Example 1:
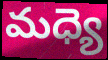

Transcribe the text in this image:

మధ్యె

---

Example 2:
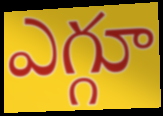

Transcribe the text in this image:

ఎగ్గూ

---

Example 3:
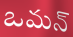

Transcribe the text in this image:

ఒమన్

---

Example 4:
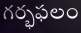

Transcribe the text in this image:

గర్భఫలం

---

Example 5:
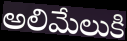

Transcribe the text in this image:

అలిమేలుకి